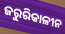
ଜରୁରିକାଳୀନ